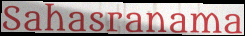
Sahasranama